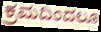
ಕ್ರಮದಿಂದಲೂ